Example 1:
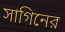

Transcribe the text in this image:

সাগিনের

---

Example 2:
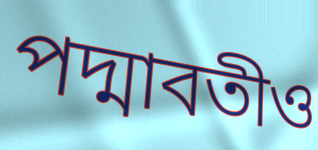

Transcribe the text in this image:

পদ্মাবতীও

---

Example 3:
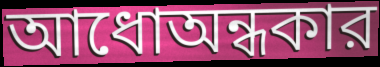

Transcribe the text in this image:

আধোঅন্ধকার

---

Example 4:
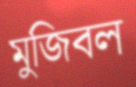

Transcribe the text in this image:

মুজিবল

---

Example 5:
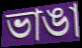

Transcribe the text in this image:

ভাঙা